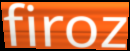
firoz